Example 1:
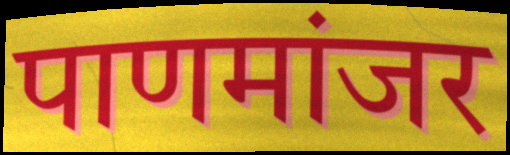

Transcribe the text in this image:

पाणमांजर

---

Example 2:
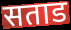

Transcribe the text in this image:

सताड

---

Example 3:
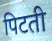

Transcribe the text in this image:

पिटती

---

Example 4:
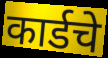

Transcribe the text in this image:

कार्डचे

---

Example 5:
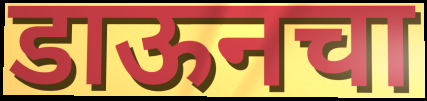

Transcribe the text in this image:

डाऊनचा